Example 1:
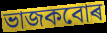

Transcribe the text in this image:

ভাজকবোৰ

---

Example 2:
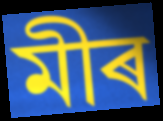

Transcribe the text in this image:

মীৰ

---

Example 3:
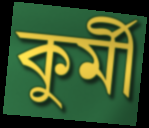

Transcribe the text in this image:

কুৰ্মী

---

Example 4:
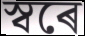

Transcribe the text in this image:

স্বৰে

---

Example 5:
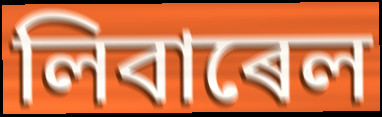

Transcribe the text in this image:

লিবাৰেল